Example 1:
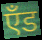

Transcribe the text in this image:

एँड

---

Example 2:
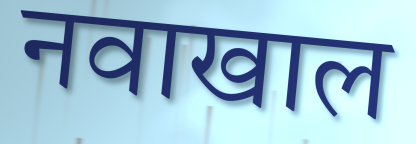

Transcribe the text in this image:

नवाखाल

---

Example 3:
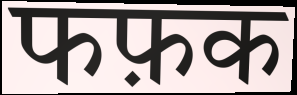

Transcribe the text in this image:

फफ़क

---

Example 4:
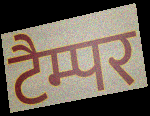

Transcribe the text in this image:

टैम्पर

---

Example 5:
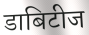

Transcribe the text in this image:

डाबिटीज